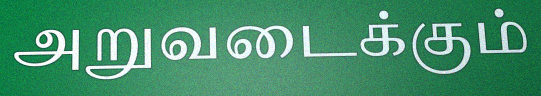
அறுவடைக்கும்